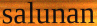
salunan